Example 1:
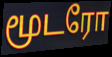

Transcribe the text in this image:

மூடரோ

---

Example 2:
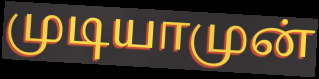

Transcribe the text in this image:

முடியாமுன்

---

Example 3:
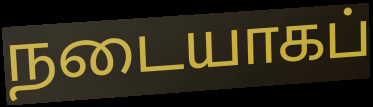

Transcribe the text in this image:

நடையாகப்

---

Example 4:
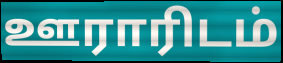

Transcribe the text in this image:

ஊராரிடம்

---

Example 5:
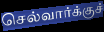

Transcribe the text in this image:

செல்வார்க்குச்